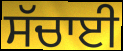
ਸੱਚਾਈ